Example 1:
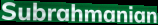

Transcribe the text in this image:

Subrahmanian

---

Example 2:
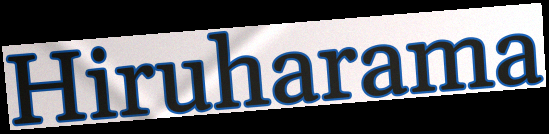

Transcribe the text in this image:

Hiruharama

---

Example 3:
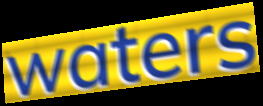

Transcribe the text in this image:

waters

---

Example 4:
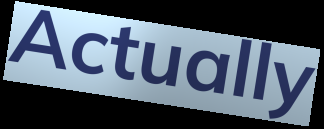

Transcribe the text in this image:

Actually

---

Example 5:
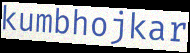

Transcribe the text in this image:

kumbhojkar